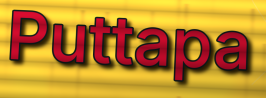
Puttapa